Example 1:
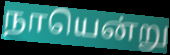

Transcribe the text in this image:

நாயென்று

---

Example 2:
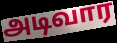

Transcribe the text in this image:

அடிவார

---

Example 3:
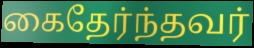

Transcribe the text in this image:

கைதேர்ந்தவர்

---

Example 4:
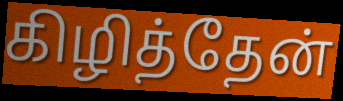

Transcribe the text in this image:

கிழித்தேன்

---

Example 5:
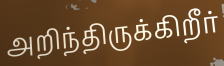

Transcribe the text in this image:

அறிந்திருக்கிறீர்